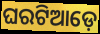
ଘରଟିଆଡ଼େ